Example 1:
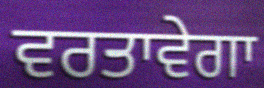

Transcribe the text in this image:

ਵਰਤਾਵੇਗਾ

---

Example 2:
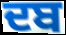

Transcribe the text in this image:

ਦਬ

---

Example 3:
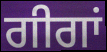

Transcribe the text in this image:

ਗੀਗਾਂ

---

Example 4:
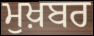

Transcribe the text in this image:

ਮੁਖ਼ਬਰ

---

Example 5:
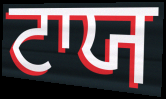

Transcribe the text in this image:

ਟਾਯ